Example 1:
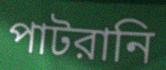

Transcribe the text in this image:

পাটরানি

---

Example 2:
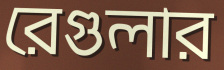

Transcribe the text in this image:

রেগুলার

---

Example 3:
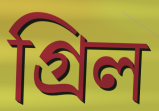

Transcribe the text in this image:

গ্রিল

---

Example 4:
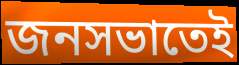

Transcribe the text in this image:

জনসভাতেই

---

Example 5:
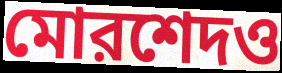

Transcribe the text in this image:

মোরশেদও